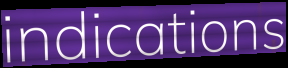
indications